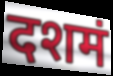
दशमं